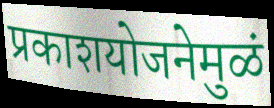
प्रकाशयोजनेमुळं